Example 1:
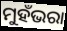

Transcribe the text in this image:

ମୁହଁଭରା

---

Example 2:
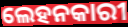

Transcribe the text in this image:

ଲେହନକାରୀ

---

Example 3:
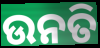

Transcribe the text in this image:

ଉନତି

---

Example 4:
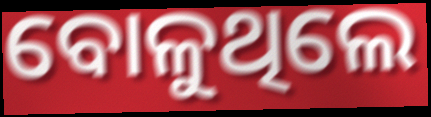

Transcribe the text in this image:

ବୋଳୁଥିଲେ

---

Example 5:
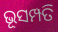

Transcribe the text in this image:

ଭୂସମ୍ପତି